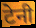
टेनी